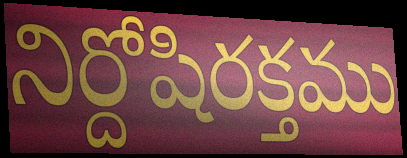
నిర్దోషిరక్తము